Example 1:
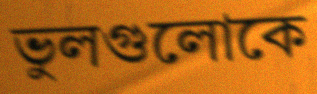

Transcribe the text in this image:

ভুলগুলোকে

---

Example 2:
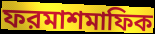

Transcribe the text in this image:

ফরমাশমাফিক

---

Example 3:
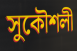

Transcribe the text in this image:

সুকৌশলী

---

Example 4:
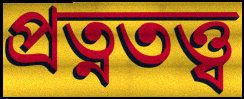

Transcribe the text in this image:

প্রত্নতত্ত্ব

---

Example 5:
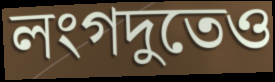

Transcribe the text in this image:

লংগদুতেও